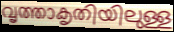
വൃത്താകൃതിയിലുള്ള